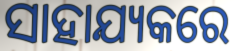
ସାହାଯ୍ୟକରେ